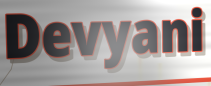
Devyani